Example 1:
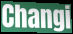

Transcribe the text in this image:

Changi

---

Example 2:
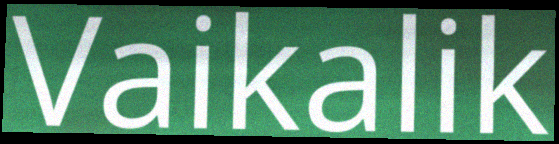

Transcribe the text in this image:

Vaikalik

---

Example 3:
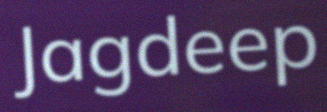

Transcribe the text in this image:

Jagdeep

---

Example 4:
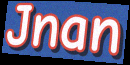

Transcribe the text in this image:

Jnan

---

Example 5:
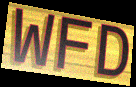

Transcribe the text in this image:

WFD